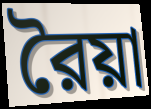
রৈয়া